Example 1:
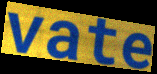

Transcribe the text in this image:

vate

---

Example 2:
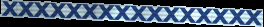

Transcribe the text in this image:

xxxxxxxxxxxxxxxx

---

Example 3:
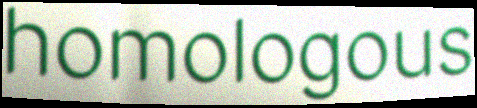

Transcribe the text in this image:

homologous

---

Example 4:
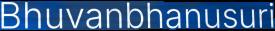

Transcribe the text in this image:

Bhuvanbhanusuri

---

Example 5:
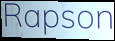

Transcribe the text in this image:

Rapson